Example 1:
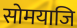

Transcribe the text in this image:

सोमयाजि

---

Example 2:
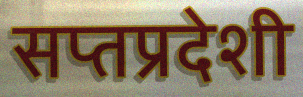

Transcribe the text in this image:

सप्तप्रदेशी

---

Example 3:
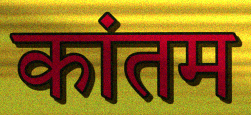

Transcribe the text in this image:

कांतम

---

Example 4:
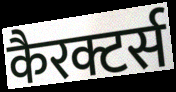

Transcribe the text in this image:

कैरक्टर्स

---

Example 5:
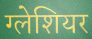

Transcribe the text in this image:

ग्लेशियर